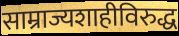
साम्राज्यशाहीविरुद्ध